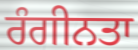
ਰੰਗੀਨਤਾ